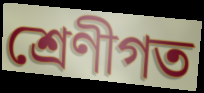
শ্রেণীগত